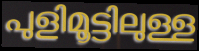
പുളിമൂട്ടിലുള്ള